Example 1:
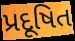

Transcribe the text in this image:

પ્રદૂષિત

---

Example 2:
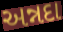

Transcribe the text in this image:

અન્નદા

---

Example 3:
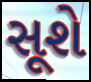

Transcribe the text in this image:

સૂશે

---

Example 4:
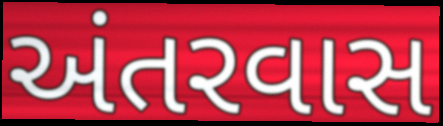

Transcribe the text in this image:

અંતરવાસ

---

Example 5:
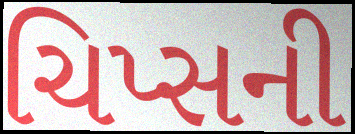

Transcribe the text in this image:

ચિપ્સની